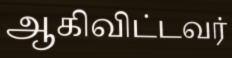
ஆகிவிட்டவர்